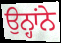
ਉਨ੍ਹਾਂਨੇ